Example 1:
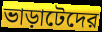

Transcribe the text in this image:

ভাড়াটেদের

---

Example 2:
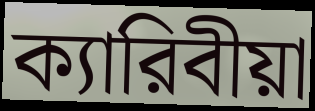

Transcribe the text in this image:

ক্যারিবীয়া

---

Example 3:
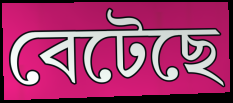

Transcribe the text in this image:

বেটেছে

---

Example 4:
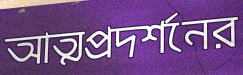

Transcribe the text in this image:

আত্মপ্রদর্শনের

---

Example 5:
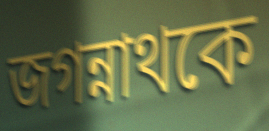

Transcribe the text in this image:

জগন্নাথকে